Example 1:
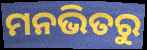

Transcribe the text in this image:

ମନଭିତରୁ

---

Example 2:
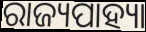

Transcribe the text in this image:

ରାଜ୍ୟପାହ୍ୟା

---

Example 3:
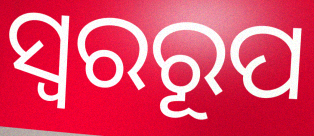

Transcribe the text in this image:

ସ୍ୱରରୂପ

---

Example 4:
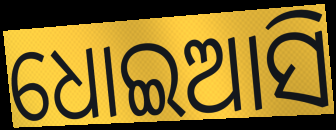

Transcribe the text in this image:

ଧୋଇଆସି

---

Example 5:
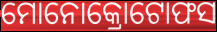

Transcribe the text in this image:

ମୋନୋକ୍ରୋଟୋଫସ